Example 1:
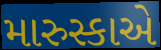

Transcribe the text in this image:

મારુસ્કાએ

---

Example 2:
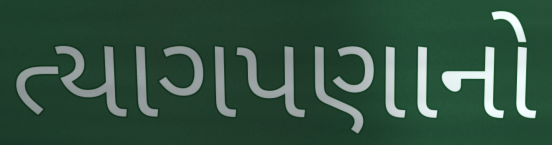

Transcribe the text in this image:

ત્યાગપણાનો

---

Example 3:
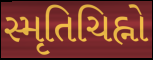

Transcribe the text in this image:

સ્મૃતિચિહ્નો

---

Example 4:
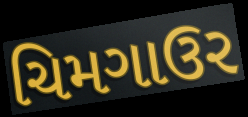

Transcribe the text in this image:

ચિમગાઉર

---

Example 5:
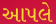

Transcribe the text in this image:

આપલે